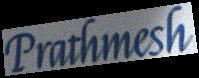
Prathmesh